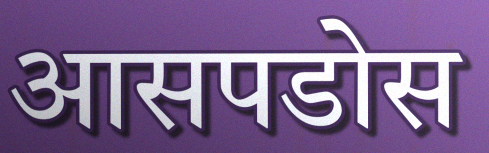
आसपडोस